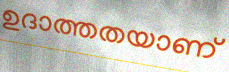
ഉദാത്തതയാണ്